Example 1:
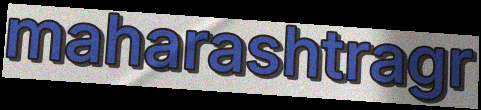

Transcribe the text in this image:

maharashtragr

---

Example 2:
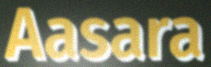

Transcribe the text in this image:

Aasara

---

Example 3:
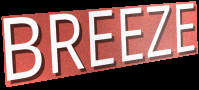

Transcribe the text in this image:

BREEZE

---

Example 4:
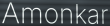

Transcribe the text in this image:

Amonkar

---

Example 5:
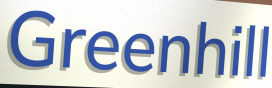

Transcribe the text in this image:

Greenhill